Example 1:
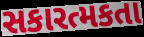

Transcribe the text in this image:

સકારત્મકતા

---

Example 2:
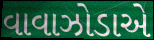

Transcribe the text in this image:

વાવાઝોડાએ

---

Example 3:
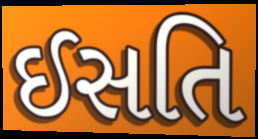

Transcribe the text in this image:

ઈસતિ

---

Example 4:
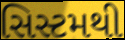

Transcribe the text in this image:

સિસ્ટમથી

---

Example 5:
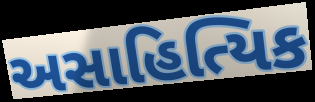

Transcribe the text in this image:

અસાહિત્યિક